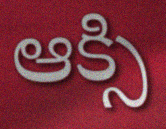
ఆక్సి